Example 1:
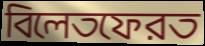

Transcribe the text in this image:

বিলেতফেরত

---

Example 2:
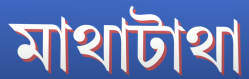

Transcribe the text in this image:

মাথাটাথা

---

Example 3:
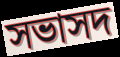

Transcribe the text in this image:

সভাসদ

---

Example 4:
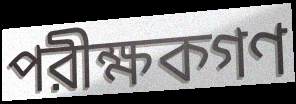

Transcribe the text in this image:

পরীক্ষকগণ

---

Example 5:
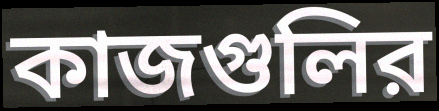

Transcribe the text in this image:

কাজগুলির